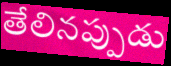
తేలినప్పుడు